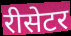
रीसेटर